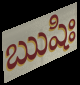
ఋషిః